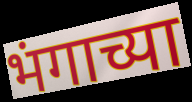
भंगाच्या